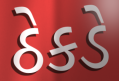
ઠેકડે